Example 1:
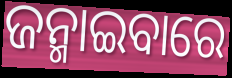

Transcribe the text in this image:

ଜନ୍ମାଇବାରେ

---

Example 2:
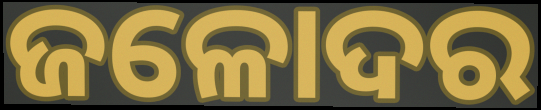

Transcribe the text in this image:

ଜଳୋଦର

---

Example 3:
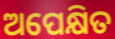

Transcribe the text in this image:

ଅପେକ୍ଷିତ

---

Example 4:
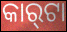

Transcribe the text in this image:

କାର୍‍ଟା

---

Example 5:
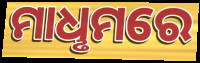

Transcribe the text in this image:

ମାଧୢମରେ